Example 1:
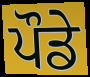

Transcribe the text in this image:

ਪੌਡੇ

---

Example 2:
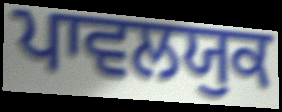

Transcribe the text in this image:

ਪਾਵਲਯੁਕ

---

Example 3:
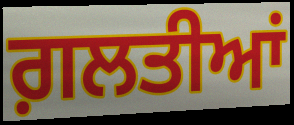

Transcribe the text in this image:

ਗ਼ਲਤੀਆਂ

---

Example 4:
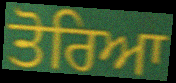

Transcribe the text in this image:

ਤੋਰਿਆ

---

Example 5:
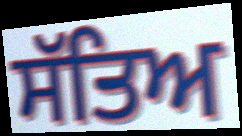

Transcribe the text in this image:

ਸੱਤਿਅ